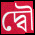
দ্বৌ